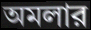
অমলার